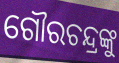
ଗୌରଚନ୍ଦ୍ରଙ୍କୁ